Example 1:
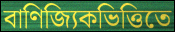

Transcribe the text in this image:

বাণিজ্যিকভিত্তিতে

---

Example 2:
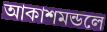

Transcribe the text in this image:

আকাশমন্ডলে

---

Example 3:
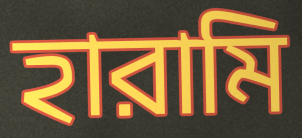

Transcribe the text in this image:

হারামি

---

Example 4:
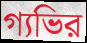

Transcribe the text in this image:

গ্যভির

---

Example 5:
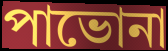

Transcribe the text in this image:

পাভোনা